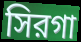
সিরগা